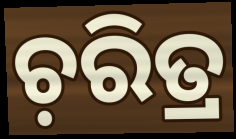
ଚ଼ରିତ୍ର